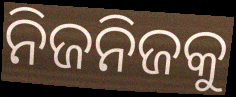
ନିଜନିଜକୁ